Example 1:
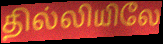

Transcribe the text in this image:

தில்லியிலே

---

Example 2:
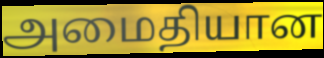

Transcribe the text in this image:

அமைதியான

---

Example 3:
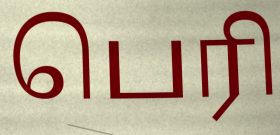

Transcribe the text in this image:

பெரி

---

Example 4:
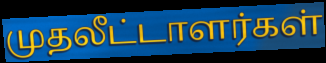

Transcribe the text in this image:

முதலீட்டாளர்கள்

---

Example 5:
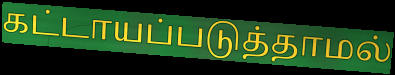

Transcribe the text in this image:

கட்டாயப்படுத்தாமல்